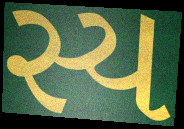
સ્ય